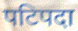
पटिपदा